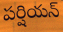
పర్షియన్